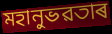
মহানুভৱতাৰ